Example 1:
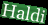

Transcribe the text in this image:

Haldi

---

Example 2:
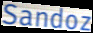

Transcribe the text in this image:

Sandoz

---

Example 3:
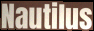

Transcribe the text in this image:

Nautilus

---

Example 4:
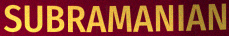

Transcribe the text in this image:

SUBRAMANIAN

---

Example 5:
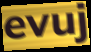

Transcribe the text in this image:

evuj